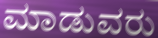
ಮಾಡುವರು